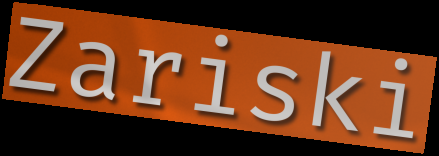
Zariski